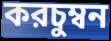
করচুম্বন